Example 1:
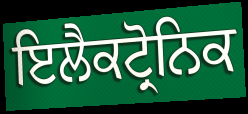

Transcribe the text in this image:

ਇਲੈਕਟ੍ਰੋਨਿਕ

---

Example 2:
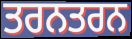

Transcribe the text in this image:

ਤਰਨਤਰਨ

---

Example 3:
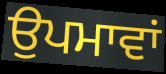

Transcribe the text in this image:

ਉਪਮਾਵਾਂ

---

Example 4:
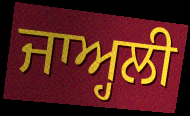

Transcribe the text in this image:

ਜਾਅ੍ਹਲੀ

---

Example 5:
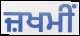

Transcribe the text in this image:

ਜ਼ਖਮੀਂ